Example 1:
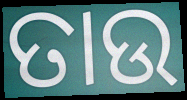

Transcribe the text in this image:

ତାଉ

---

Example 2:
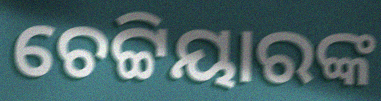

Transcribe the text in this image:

ଚେଟ୍ଟିୟାରଙ୍କ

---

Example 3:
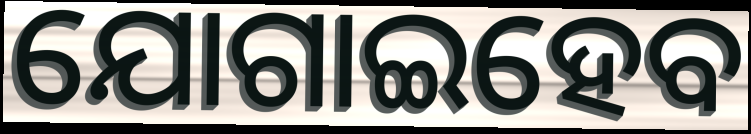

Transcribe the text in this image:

ଯୋଗାଇହେବ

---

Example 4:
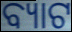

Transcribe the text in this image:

ବ୍ୟାଟ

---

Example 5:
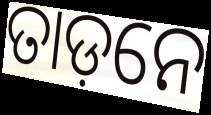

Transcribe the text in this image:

ତାଡ଼ନେ